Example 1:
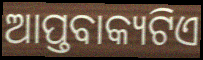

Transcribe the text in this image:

ଆପ୍ତବାକ୍ୟଟିଏ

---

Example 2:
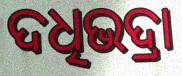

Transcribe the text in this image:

ଦଧିଭଦ୍ରା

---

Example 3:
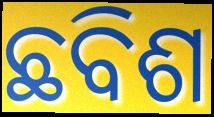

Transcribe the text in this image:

ଛବିଶ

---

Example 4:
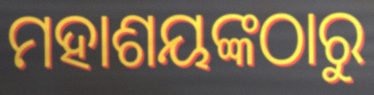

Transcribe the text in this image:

ମହାଶୟଙ୍କଠାରୁ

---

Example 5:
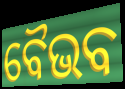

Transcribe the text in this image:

ବୈଭବ